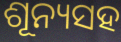
ଶୂନ୍ୟସହ